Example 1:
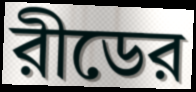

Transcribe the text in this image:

রীডের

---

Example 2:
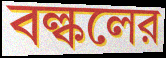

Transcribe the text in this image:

বল্কলের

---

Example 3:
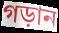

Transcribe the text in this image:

গড়ান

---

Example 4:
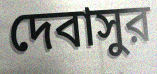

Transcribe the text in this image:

দেবাসুর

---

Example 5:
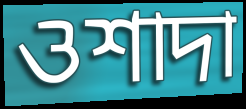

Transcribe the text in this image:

ওশাদা